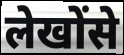
लेखोंसे